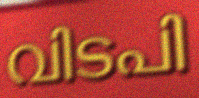
വിടപി